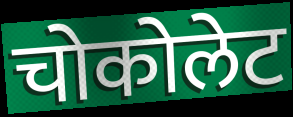
चोकोलेट